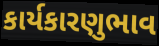
કાર્યકારણુભાવ